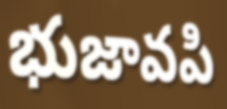
భుజావపి